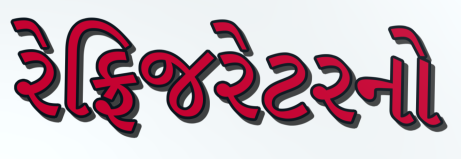
રેફ્રિજરેટરનો